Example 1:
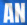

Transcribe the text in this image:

AN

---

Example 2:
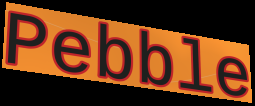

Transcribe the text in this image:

Pebble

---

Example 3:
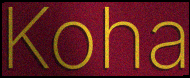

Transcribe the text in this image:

Koha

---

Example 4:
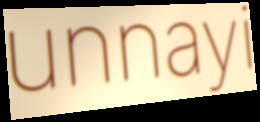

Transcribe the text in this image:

unnayi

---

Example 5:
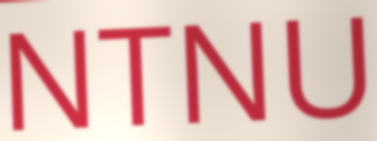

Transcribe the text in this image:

NTNU